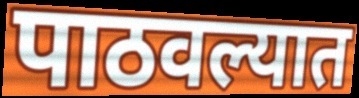
पाठवल्यात